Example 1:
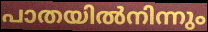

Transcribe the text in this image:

പാതയിൽനിന്നും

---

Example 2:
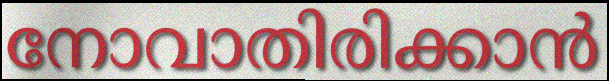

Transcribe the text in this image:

നോവാതിരിക്കാൻ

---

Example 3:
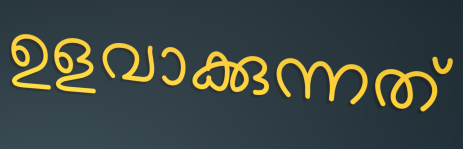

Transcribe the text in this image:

ഉളവാക്കുന്നത്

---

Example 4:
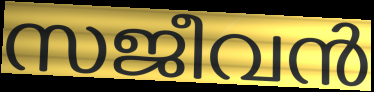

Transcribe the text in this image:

സജീവൻ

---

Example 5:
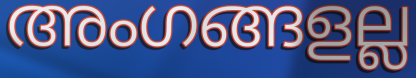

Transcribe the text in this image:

അംഗങ്ങളല്ല